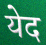
येद